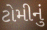
ટોમીનું